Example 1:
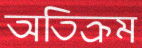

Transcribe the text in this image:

অতিক্ৰম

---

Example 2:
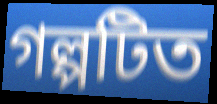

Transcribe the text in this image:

গল্পটিত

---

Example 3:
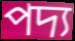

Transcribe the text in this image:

পদ্য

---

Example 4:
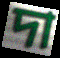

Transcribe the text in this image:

দা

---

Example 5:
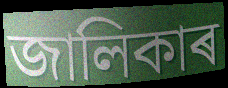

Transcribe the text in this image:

জালিকাৰ